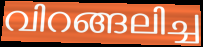
വിറങ്ങലിച്ച